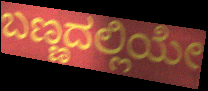
ಬಣ್ಣದಲ್ಲಿಯೇ